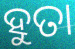
ହୁତା